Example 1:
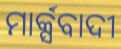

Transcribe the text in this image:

ମାର୍କ୍ସବାଦୀ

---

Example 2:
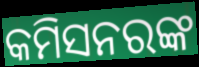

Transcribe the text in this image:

କମିସନରଙ୍କ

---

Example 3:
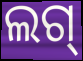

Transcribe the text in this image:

ଲଗ୍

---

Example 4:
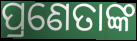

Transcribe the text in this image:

ପ୍ରଣେତାଙ୍କ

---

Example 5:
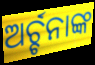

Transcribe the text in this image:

ଅର୍ଚ୍ଚନାଙ୍କ